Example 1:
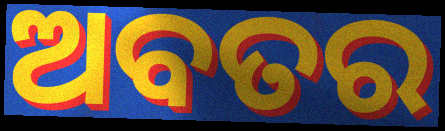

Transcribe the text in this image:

ଅବତର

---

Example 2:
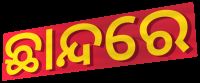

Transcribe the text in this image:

ଛାନ୍ଦରେ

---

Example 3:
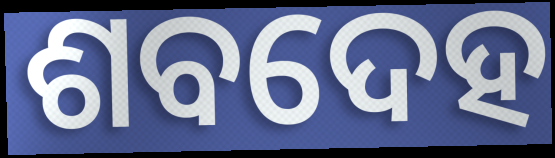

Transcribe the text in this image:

ଶବଦେହ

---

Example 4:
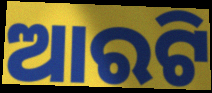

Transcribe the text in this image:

ଆରଟି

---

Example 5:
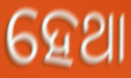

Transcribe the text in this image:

ହେଥା